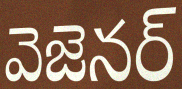
వెజెనర్